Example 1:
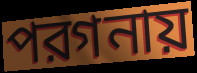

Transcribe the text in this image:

পরগনায়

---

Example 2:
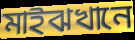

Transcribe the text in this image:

মাইঝখানে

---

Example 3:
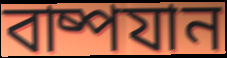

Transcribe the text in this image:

বাষ্পযান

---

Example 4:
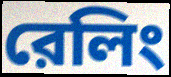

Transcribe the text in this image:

রেলিং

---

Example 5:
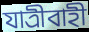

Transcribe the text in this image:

যাত্রীবাহী